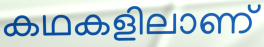
കഥകളിലാണ്